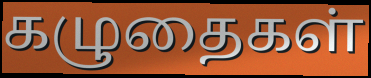
கழுதைகள்